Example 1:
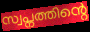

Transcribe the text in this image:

സ്വപ്നത്തിന്റെ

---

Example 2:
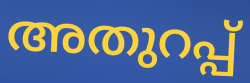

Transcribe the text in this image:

അതുറപ്പ്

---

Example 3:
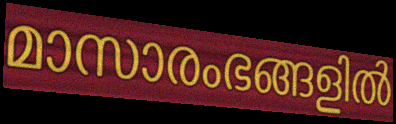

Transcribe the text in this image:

മാസാരംഭങ്ങളിൽ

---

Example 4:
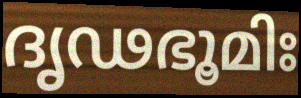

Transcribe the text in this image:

ദൃഢഭൂമിഃ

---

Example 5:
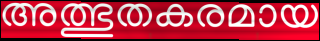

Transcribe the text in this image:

അത്ഭുതകരമായ